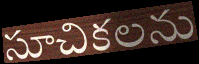
సూచికలను